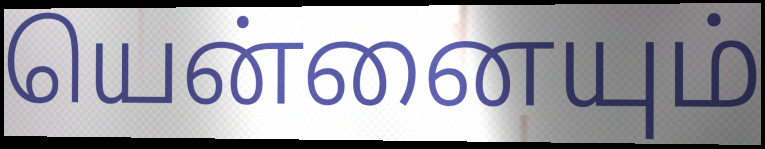
யென்னையும்